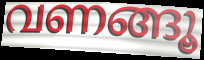
വണങ്ങൂ